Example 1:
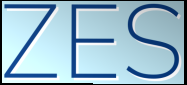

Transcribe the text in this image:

ZES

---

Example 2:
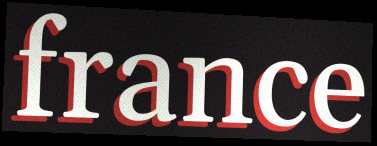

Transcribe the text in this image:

france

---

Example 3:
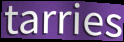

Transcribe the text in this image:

tarries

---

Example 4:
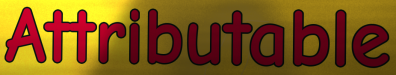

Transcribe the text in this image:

Attributable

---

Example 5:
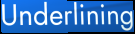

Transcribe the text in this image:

Underlining